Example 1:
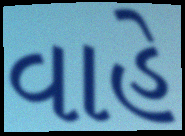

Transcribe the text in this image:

વાહે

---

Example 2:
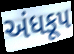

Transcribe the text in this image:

અંધકૂપ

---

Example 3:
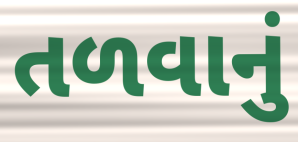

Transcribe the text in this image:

તળવાનું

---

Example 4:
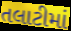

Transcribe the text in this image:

તલાટીમાં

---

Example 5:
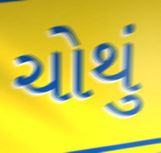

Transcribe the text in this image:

ચોથું